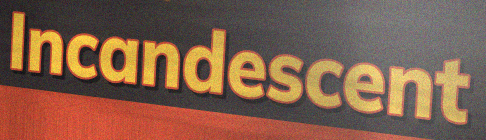
Incandescent